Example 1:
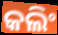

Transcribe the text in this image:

କଲିଂ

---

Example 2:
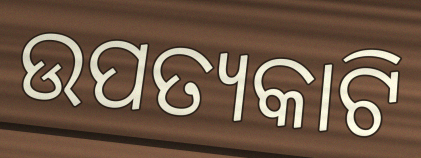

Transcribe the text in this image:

ଉପତ୍ୟକାଟି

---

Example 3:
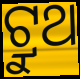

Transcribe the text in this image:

ଟ୍ରୁଥ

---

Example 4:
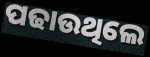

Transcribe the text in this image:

ପଢାଉଥିଲେ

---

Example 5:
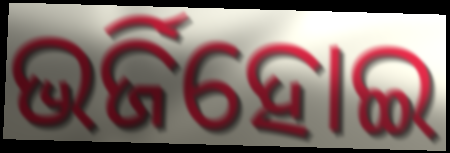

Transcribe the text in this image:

ଭର୍ଜିହୋଇ